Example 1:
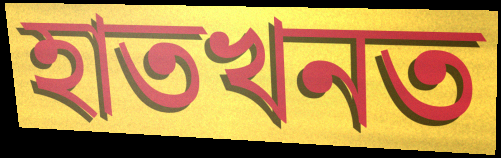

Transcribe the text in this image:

হাতখনত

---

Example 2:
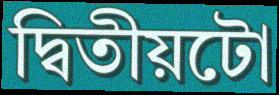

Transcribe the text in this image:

দ্বিতীয়টো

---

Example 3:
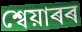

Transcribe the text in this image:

শ্বেয়াৰৰ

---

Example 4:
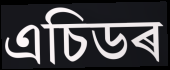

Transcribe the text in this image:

এচিডৰ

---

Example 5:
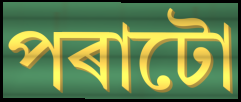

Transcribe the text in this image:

পৰাটো